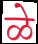
ळे